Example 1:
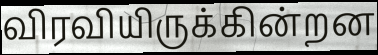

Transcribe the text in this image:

விரவியிருக்கின்றன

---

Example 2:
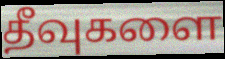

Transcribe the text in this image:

தீவுகளை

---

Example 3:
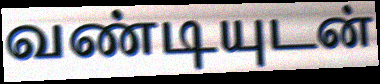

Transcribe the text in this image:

வண்டியுடன்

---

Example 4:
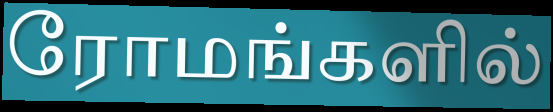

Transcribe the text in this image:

ரோமங்களில்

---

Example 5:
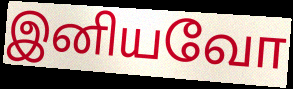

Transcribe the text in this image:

இனியவோ